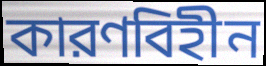
কারণবিহীন